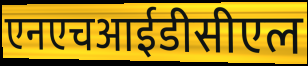
एनएचआईडीसीएल